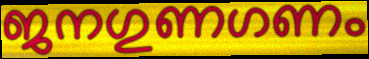
ജനഗുണഗണം